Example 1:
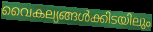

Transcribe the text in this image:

വൈകല്യങ്ങൾക്കിടയിലും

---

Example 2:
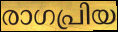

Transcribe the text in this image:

രാഗപ്രിയ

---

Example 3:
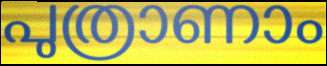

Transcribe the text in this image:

പുത്രാണാം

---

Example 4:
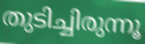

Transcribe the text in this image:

തുടിച്ചിരുന്നൂ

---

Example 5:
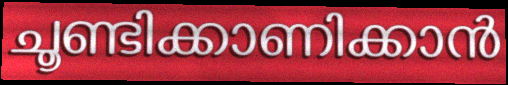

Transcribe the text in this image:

ചൂണ്ടിക്കാണിക്കാൻ